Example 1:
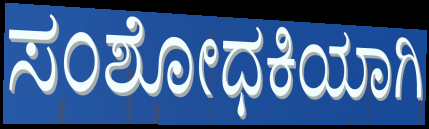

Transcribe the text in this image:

ಸಂಶೋಧಕಿಯಾಗಿ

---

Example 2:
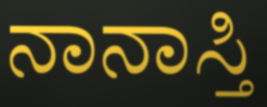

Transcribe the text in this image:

ನಾನಾಸ್ತಿ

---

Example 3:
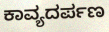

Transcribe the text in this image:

ಕಾವ್ಯದರ್ಪಣ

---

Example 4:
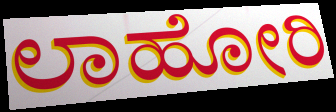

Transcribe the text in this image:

ಲಾಹೋರಿ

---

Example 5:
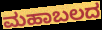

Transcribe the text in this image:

ಮಹಾಬಲದ